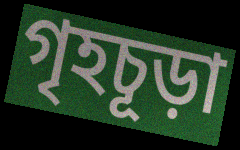
গৃহচূড়া